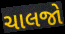
ચાલજો